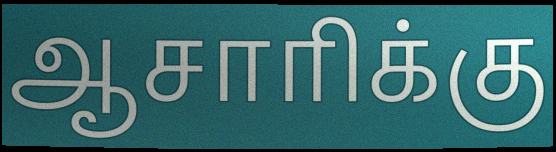
ஆசாரிக்கு